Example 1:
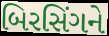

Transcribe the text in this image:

બિરસિંગને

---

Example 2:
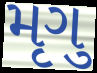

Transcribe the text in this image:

મૃગુ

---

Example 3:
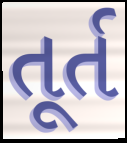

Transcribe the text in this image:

તૂર્ત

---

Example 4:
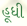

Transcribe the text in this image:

હૂધી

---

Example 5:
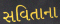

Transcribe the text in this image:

સવિતાના